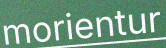
morientur